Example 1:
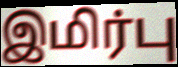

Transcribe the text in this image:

இமிர்பு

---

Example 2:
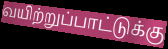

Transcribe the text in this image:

வயிற்றுப்பாட்டுக்கு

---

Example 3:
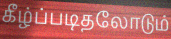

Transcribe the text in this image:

கீழ்ப்படிதலோடும்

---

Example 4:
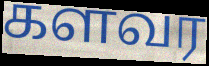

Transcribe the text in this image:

களவர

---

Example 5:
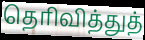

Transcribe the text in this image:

தெரிவித்துத்